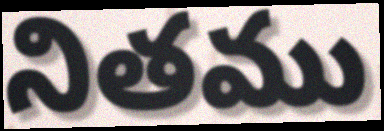
నితము